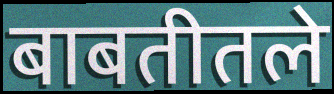
बाबतीतले